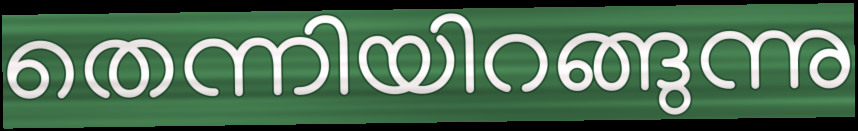
തെന്നിയിറങ്ങുന്നു